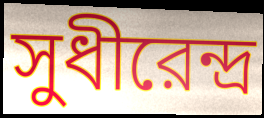
সুধীরেন্দ্র